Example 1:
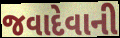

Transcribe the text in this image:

જવાદેવાની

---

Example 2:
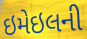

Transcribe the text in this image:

ઇમેઇલની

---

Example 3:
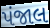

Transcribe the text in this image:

પંજાલ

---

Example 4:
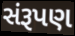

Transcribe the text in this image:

સંરૂપણ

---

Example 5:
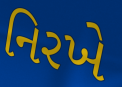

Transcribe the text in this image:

નિરખે